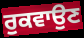
ਰੁਕਵਾਉਣ